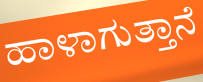
ಹಾಳಾಗುತ್ತಾನೆ